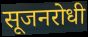
सूजनरोधी